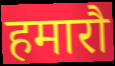
हमारौ